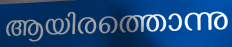
ആയിരത്തൊന്നു